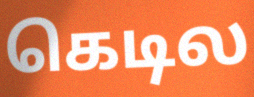
கெடில